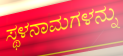
ಸ್ಥಳನಾಮಗಳನ್ನು